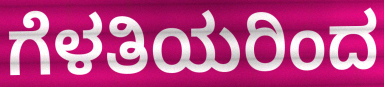
ಗೆಳತಿಯರಿಂದ